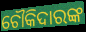
ଚୌକିଦାରଙ୍କ